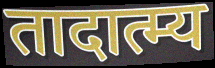
तादात्म्य